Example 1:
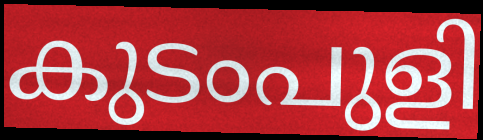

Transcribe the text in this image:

കുടംപുളി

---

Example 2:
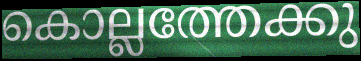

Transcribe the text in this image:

കൊല്ലത്തേക്കു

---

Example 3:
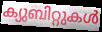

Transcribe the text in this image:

ക്യുബിറ്റുകൾ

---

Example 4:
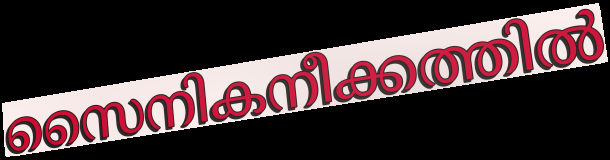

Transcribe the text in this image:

സൈനികനീക്കത്തിൽ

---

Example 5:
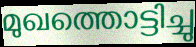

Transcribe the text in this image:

മുഖത്തൊട്ടിച്ചു